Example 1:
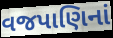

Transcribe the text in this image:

વજપાણિનાં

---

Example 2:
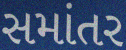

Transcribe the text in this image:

સમાંતર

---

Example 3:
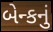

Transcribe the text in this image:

બેન્કનું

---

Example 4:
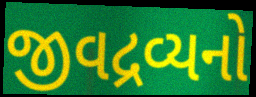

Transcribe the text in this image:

જીવદ્રવ્યનો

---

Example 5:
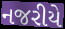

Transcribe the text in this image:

નજરીયે